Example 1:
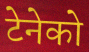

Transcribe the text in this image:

टेनेको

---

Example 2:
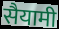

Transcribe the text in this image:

सैयामी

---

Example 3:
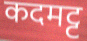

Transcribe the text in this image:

कदमट्ट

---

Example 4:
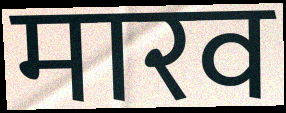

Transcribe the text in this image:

मारव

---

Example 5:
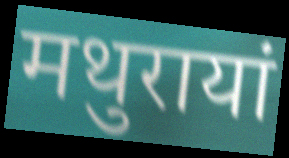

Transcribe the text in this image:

मथुरायां